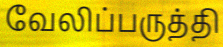
வேலிப்பருத்தி